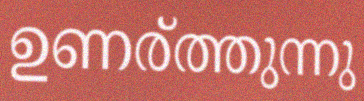
ഉണര്ത്തുന്നു